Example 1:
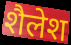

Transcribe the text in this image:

शैलेश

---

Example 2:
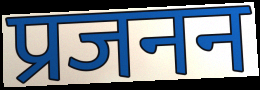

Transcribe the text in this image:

प्रजनन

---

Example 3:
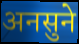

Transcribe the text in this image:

अनसुने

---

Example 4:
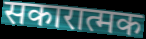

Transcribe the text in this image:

सकारात्‍मक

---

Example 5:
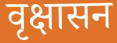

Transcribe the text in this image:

वृक्षासन